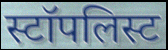
स्टॉपलिस्ट